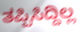
ತಪ್ಪಿಸಿದ್ದಿಲ್ಲ